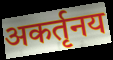
अकर्तृनय